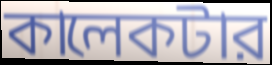
কালেকটার